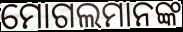
ମୋଗଲମାନଙ୍କ